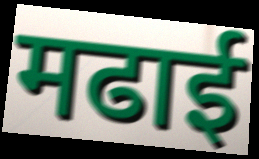
मढाई